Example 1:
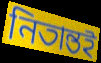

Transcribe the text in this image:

নিতান্তই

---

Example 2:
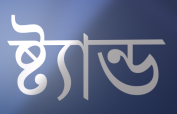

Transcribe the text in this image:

ষ্ট্যান্ড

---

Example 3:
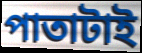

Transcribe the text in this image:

পাতাটাই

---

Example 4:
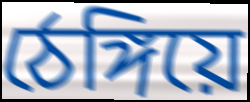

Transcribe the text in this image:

ঠেঙ্গিয়ে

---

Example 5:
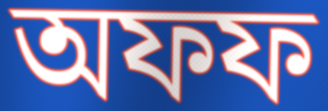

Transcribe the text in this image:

অফফ